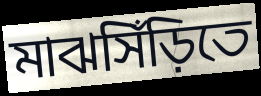
মাঝসিঁড়িতে